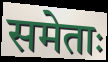
समेताः